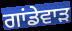
ਗਾਂਡੇਵਾੜ